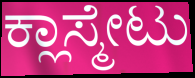
ಕ್ಲಾಸ್ಮೇಟು